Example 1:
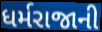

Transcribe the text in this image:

ધર્મરાજાની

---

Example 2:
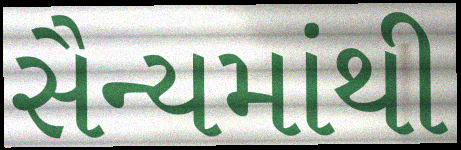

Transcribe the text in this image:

સૈન્યમાંથી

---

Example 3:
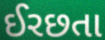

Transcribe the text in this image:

ઈરછતા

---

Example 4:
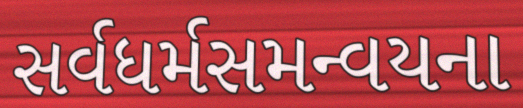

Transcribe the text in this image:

સર્વધર્મસમન્વયના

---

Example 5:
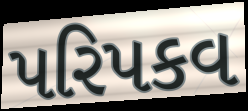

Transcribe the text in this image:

પરિપકવ